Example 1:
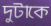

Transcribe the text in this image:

দুটাকে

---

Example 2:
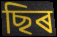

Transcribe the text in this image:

ছিৰ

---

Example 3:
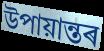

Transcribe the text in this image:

উপায়ান্তৰ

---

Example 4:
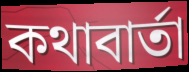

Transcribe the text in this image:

কথাবাৰ্তা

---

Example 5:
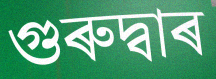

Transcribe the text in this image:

গুৰুদ্বাৰ